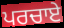
ਪਰਚਾਏ